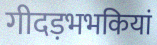
गीदड़भभकियां